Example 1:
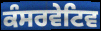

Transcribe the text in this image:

ਕੰਸਰਵੇਟਿਵ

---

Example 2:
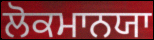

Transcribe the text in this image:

ਲੋਕਮਾਨਯਾ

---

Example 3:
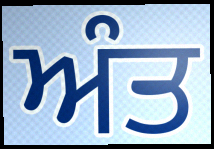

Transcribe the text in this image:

ਅੰਤ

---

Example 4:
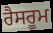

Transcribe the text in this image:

ਰੈਸਰੂਮ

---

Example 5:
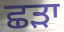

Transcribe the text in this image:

ਛਡ਼ਾ